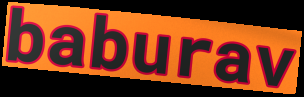
baburav